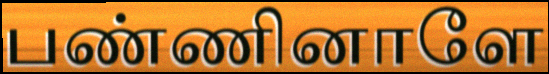
பண்ணினாளே